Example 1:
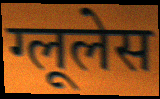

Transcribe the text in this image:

ग्लूलेस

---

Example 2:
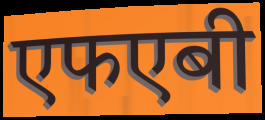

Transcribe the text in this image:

एफएबी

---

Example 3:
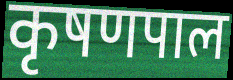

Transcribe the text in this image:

कृषणपाल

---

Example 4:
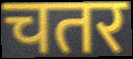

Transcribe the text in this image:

चतर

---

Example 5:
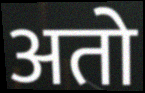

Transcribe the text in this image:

अतो